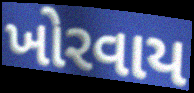
ખોરવાય